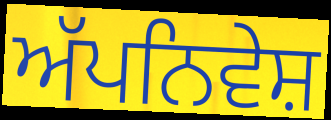
ਅੱਪਨਿਵੇਸ਼